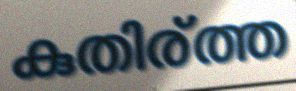
കുതിര്ത്ത